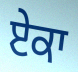
ਏਕਾ